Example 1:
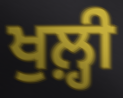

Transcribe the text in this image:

ਖੁਲ਼੍ਹੀ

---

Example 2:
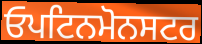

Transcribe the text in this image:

ਓਪਟਿਨਮੋਨਸਟਰ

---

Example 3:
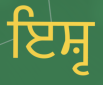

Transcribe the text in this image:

ਇਸ਼੍ਟ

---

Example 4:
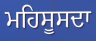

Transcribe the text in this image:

ਮਹਿਸੂਸਦਾ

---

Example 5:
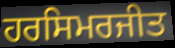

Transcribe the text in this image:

ਹਰਸਿਮਰਜੀਤ